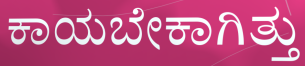
ಕಾಯಬೇಕಾಗಿತ್ತು